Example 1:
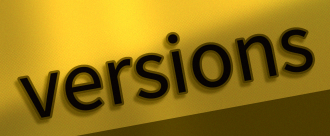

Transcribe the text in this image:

versions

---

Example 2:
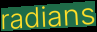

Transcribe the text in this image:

radians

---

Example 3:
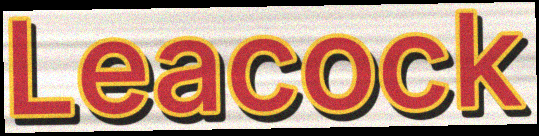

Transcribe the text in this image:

Leacock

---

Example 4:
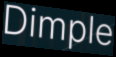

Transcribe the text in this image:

Dimple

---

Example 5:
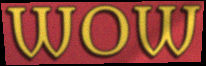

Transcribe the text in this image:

WOW